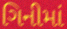
ગિનીમાં